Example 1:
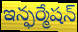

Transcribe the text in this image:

ఇన్ఫర్మేషన్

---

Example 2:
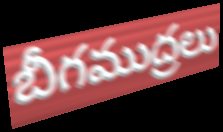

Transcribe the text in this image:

బీగముద్రలు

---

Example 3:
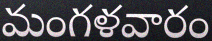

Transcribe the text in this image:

మంగళవారం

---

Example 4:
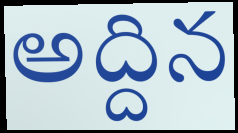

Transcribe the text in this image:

అద్దిన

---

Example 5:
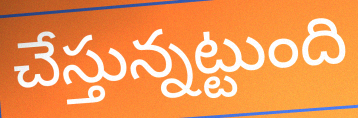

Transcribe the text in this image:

చేస్తున్నట్టుంది